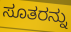
ಸೂತರನ್ನು